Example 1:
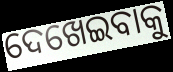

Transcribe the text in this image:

ଦେଖେଇବାକୁ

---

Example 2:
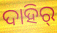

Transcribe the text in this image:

ଦାହିର୍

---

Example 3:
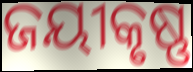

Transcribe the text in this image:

ଜୟୀକୃଷ୍ଣ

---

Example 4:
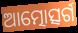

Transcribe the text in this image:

ଆତ୍ମୋତ୍ସର୍ଗ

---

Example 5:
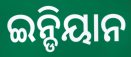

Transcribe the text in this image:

ଇନ୍ଡିୟାନ